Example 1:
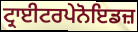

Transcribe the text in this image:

ਟ੍ਰਾਈਟਰਪੇਨੋਇਡਜ਼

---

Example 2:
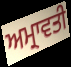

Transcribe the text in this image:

ਅਮ੍ਰਾਵਤੀ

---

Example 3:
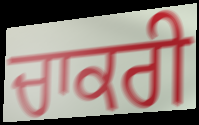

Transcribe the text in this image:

ਚਾਕਰੀ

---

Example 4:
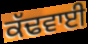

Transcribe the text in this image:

ਕੱਢਵਾਈ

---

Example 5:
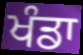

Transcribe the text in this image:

ਖੰਡਾ